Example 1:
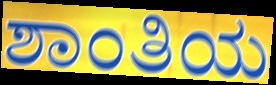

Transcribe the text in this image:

ಶಾಂತಿಯ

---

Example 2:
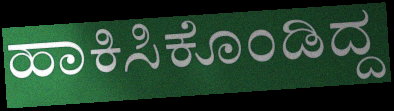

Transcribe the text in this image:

ಹಾಕಿಸಿಕೊಂಡಿದ್ದ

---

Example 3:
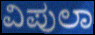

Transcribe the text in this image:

ವಿಪುಲಾ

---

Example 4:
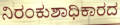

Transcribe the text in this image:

ನಿರಂಕುಶಾಧಿಕಾರದ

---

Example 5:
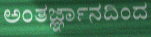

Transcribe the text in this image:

ಅಂತರ್ಜ್ಞಾನದಿಂದ